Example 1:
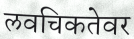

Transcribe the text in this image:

लवचिकतेवर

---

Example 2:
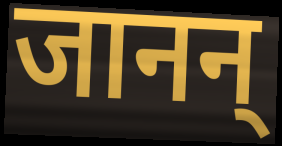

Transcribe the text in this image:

जानन्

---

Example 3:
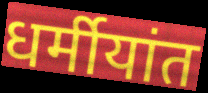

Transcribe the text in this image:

धर्मीयांत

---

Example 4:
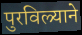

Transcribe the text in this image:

पुरविल्याने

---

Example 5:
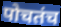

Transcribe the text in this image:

पोचतंच